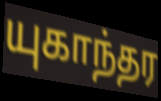
யுகாந்தர